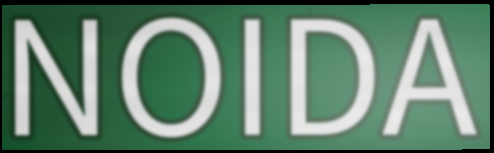
NOIDA